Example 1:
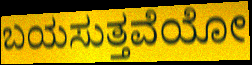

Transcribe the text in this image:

ಬಯಸುತ್ತವೆಯೋ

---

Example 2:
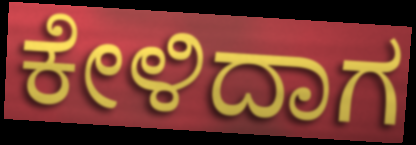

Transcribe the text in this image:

ಕೇಳಿದಾಗ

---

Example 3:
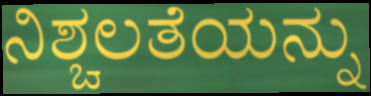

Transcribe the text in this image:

ನಿಶ್ಚಲತೆಯನ್ನು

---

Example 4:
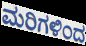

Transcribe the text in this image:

ಮರಿಗಳಿಂದ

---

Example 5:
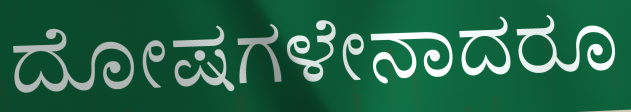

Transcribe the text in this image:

ದೋಷಗಳೇನಾದರೂ